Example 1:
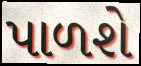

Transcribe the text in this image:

પાળશે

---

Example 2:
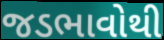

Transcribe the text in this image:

જડભાવોથી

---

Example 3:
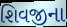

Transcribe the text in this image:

શિવજીના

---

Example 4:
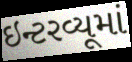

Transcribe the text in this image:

ઇન્ટરવ્યૂમાં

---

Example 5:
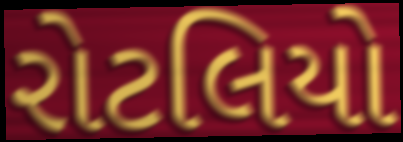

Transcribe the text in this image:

રોટલિયો